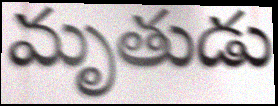
మృతుడు